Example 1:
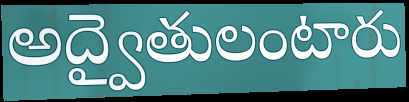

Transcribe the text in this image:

అద్వైతులంటారు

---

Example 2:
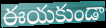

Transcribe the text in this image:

ఈయకుండా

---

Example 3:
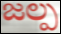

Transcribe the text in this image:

జల్ప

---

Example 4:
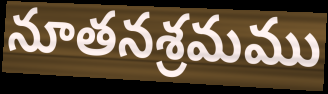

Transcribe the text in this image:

నూతనశ్రమము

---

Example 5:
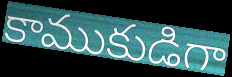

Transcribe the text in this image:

కాముకుడిగా